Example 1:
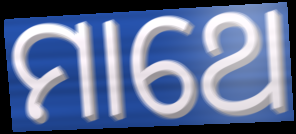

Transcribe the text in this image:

ମାଥେ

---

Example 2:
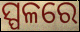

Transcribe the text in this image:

ସ୍ପଳରେ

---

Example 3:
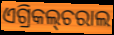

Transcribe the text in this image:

ଏଗ୍ରିକଲ୍‌ଚରାଲ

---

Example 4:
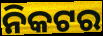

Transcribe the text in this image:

ନିକଟର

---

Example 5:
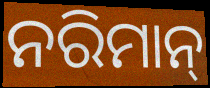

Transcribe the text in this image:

ନରିମାନ୍